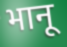
भानू